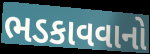
ભડકાવવાનો